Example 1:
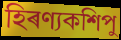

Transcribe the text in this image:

হিৰণ্যকশিপু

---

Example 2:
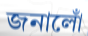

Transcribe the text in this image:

জনালোঁ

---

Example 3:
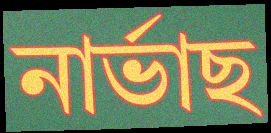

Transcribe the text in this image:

নাৰ্ভাছ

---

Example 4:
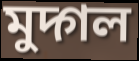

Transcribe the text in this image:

মুদ্গল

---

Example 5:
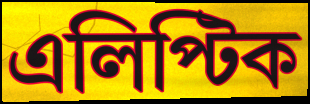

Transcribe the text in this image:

এলিপ্টিক